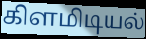
கிளமிடியல்